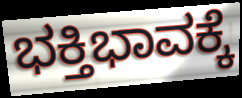
ಭಕ್ತಿಭಾವಕ್ಕೆ